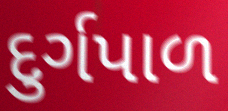
દુર્ગપાળ